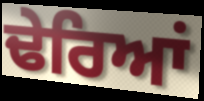
ਢੇਰਿਆਂ